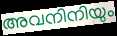
അവനിനിയും